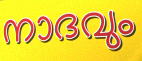
നാദവും